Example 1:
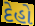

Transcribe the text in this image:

દેહો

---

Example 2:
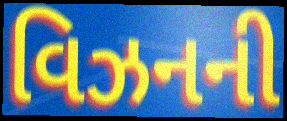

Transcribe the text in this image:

વિઝનની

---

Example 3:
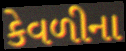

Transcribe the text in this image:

કેવળીના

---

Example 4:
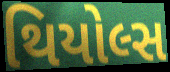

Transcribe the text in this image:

થિયોલ્સ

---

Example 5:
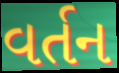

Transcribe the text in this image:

વર્તન